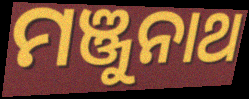
ମଞ୍ଜୁନାଥ